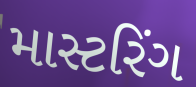
માસ્ટરિંગ